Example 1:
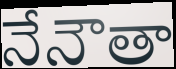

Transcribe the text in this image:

నేనౌతా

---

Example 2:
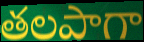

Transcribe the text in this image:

తలపాగా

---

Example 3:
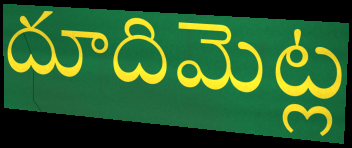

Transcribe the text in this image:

దూదిమెట్ల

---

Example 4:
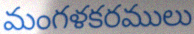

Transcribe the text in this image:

మంగళకరములు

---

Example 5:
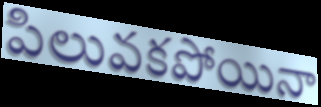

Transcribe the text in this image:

పిలువకపోయినా